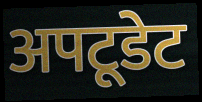
अपटूडेट